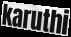
karuthi